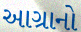
આગ્રાનો